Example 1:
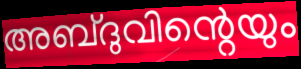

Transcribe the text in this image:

അബ്ദുവിന്റെയും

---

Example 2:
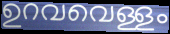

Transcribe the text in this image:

ഉറവവെള്ളം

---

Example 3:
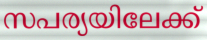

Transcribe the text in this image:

സപര്യയിലേക്ക്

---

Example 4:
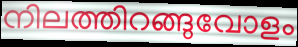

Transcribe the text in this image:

നിലത്തിറങ്ങുവോളം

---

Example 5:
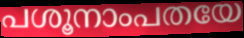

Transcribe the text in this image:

പശൂനാംപതയേ